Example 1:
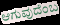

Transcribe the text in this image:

ಆಗುವುದೆಂಬ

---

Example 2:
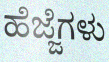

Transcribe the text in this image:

ಹೆಜ್ಜೆಗಳು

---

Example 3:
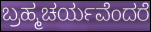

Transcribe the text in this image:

ಬ್ರಹ್ಮಚರ್ಯವೆಂದರೆ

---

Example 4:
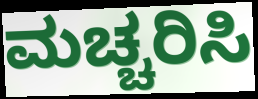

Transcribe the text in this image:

ಮಚ್ಚರಿಸಿ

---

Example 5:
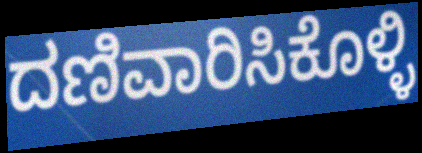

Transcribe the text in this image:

ದಣಿವಾರಿಸಿಕೊಳ್ಳಿ